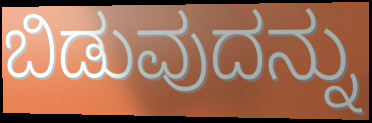
ಬಿಡುವುದನ್ನು